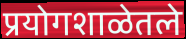
प्रयोगशाळेतले